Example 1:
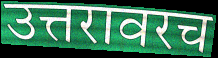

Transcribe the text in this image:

उत्तरावरच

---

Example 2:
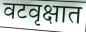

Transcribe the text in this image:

वटवृक्षात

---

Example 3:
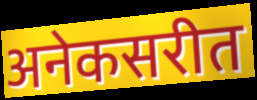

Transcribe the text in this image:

अनेकसरीत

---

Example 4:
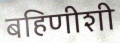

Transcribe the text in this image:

बहिणीशी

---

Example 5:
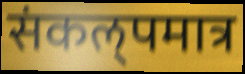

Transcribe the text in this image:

संकल्पमात्र